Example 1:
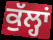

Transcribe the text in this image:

ਕੁੱਲ੍ਹਾਂ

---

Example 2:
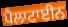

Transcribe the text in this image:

ਪੈਲਾਟਾਈਨ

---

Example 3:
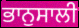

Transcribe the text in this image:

ਭਾਨੁਸਾਲੀ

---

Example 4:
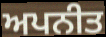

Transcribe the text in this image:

ਅਪਨੀਤ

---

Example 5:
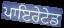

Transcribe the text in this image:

ਪਾਇਰੇਟੇਡ